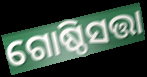
ଗୋଷ୍ଠିସତ୍ତା